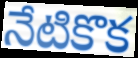
నేటికొక